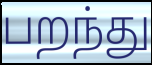
பறந்து